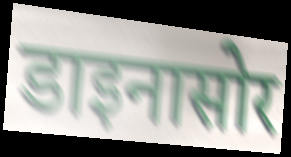
डाइनासोर